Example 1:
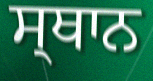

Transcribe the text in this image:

ਸ੍ਥਾਨ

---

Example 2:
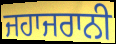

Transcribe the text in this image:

ਜਹਾਜਰਾਨੀ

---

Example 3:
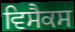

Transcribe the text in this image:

ਵਿਸੈਕਸ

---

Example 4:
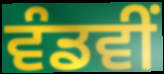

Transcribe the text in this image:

ਵੰਡਵੀਂ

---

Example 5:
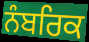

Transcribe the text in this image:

ਨੰਬਰਿਕ